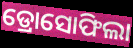
ଡ୍ରୋସୋଫିଲା